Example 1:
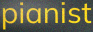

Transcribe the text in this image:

pianist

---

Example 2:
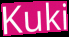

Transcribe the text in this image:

Kuki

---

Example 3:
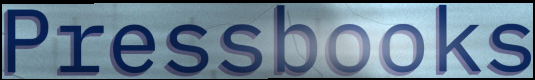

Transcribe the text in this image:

Pressbooks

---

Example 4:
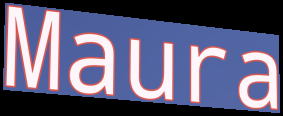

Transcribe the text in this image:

Maura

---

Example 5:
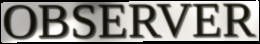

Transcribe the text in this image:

OBSERVER